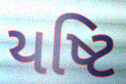
યષ્ટિ